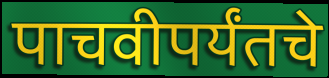
पाचवीपर्यंतचे